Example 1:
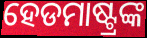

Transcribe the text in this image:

ହେଡମାଷ୍ଟ୍ରଙ୍କ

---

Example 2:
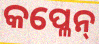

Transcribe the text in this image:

କପ୍ଳେନ୍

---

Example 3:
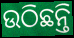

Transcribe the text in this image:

ଉଠିଛନ୍ତି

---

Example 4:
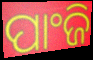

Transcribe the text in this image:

ପାଂଜି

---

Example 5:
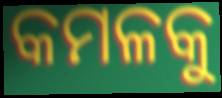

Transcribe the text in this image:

କମଳକୁ